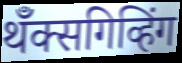
थॅँक्सगिव्हिंग